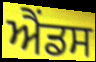
ਐਂਡਸ